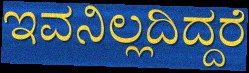
ಇವನಿಲ್ಲದಿದ್ದರೆ